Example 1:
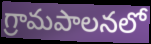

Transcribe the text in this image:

గ్రామపాలనలో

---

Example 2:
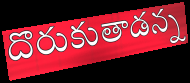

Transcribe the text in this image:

దొరుకుతాడన్న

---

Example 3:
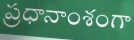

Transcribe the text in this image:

ప్రధానాంశంగా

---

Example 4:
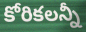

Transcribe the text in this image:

కోరికలన్నీ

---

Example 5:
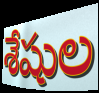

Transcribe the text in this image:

శేషుల